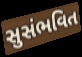
સુસંભવિત